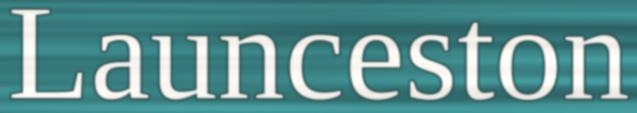
Launceston